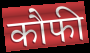
कौफी